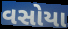
વસોયા